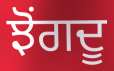
ਝੋਂਗਦੂ